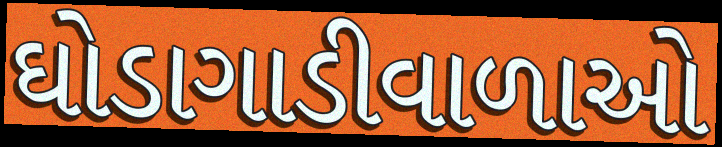
ઘોડાગાડીવાળાઓ